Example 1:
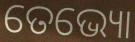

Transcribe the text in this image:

ତେଭ୍ୟୋ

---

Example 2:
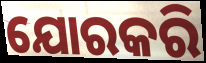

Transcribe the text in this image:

ଯୋରକରି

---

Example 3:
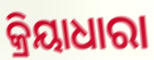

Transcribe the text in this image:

କ୍ରିୟାଧାରା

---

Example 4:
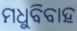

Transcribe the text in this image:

ମଧୁବିବାହ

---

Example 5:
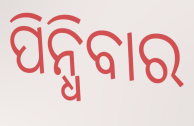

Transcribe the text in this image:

ପିନ୍ଧିବାର